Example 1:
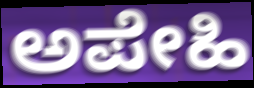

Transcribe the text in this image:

ಅಪೇಹಿ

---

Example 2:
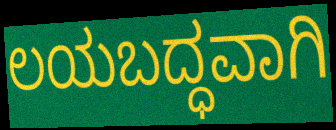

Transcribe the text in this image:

ಲಯಬದ್ಧವಾಗಿ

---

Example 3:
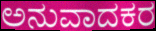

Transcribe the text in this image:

ಅನುವಾದಕರ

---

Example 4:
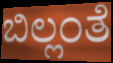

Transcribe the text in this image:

ಬಿಲ್ಲಂತೆ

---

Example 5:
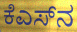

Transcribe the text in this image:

ಕೆಎಸ್‌ನ